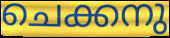
ചെക്കനു